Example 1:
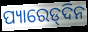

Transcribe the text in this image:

ପ୍ୟାରେଡ୍‌ଦିନ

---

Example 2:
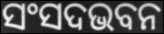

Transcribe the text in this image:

ସଂସଦଭବନ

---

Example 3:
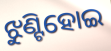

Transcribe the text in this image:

ଝୁଣ୍ଟିହୋଇ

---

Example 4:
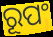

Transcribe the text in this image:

ରୂପଂ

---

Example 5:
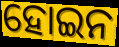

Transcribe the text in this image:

ହୋଇନ